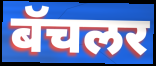
बॅचलर